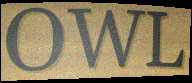
OWL